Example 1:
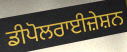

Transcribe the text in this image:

ਡੀਪੋਲਰਾਈਜ਼ੇਸ਼ਨ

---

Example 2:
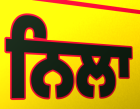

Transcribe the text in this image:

ਨਿਲਾ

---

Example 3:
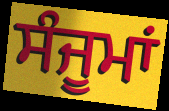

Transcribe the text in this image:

ਸੰਜੂਮਾਂ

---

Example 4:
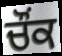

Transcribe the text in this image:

ਚੌਂਕ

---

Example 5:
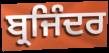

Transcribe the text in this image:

ਬ੍ਰਜਿੰਦਰ